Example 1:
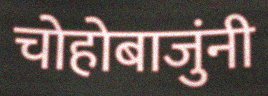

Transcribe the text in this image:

चोहोबाजुंनी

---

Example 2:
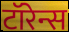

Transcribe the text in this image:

टॉरेन्स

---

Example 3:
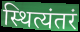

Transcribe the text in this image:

स्थित्यंतरं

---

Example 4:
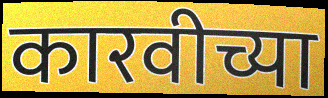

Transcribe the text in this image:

कारवीच्या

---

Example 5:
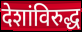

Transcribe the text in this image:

देशांविरुद्ध